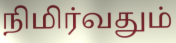
நிமிர்வதும்